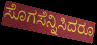
ಸೊಗಸೆನ್ನಿಸಿದರೂ